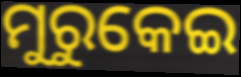
ମୁରୁକେଇ